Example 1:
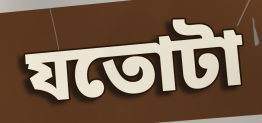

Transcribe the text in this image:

যতোটা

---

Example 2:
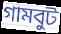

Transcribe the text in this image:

গামবুট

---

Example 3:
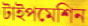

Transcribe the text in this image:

টাইপমেশিন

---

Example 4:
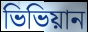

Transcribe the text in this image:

ভিভিয়ান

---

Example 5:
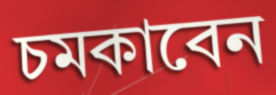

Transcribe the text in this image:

চমকাবেন